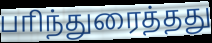
பரிந்துரைத்தது